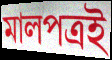
মালপত্রই